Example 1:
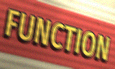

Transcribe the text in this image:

FUNCTION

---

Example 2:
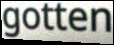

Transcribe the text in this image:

gotten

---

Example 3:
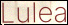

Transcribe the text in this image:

Lulea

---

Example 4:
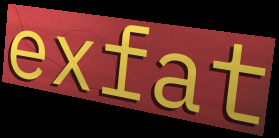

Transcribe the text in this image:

exfat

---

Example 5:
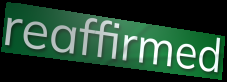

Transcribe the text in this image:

reaffirmed